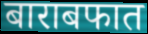
बाराबफात